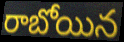
రాబోయిన